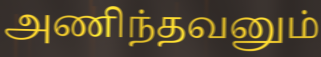
அணிந்தவனும்